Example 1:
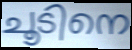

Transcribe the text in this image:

ചൂടിനെ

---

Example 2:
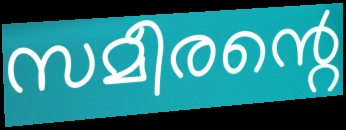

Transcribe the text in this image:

സമീരന്റെ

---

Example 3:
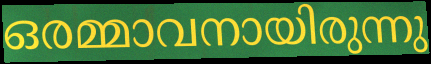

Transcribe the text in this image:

ഒരമ്മാവനായിരുന്നു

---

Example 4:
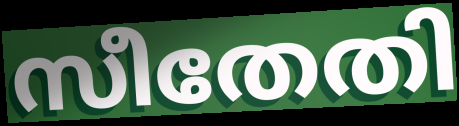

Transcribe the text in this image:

സീതേതി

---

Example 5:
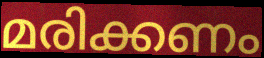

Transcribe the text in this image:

മരിക്കണം